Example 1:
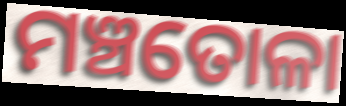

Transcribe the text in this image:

ମଞ୍ଚତୋଳା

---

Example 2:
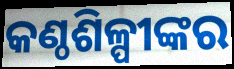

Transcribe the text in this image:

କଣ୍ଠଶିଳ୍ପୀଙ୍କର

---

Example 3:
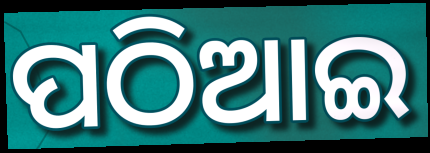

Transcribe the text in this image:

ପଠିଆଇ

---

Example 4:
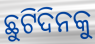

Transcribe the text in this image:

ଛୁଟିଦିନକୁ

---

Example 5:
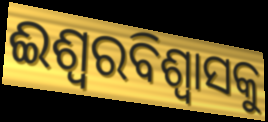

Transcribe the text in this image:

ଈଶ୍ୱରବିଶ୍ଵାସକୁ